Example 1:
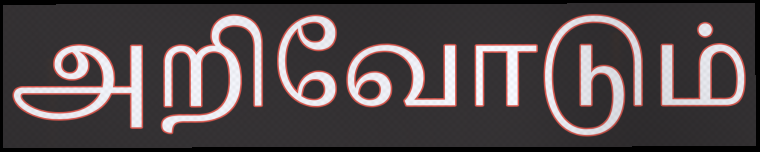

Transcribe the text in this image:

அறிவோடும்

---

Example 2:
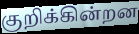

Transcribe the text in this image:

குறிக்கின்றன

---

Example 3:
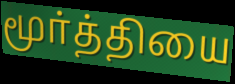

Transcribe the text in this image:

மூர்த்தியை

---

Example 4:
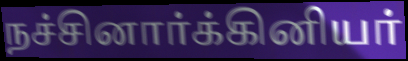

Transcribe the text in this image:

நச்சினார்க்கினியர்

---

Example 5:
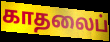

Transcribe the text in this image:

காதலைப்